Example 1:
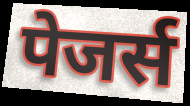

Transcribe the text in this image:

पेजर्स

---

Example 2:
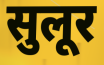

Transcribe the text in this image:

सुलूर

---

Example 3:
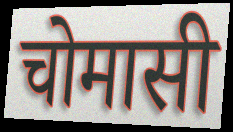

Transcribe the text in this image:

चोमासी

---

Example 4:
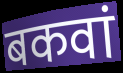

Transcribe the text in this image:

बकवां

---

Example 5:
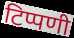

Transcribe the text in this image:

टिप्‍पणी